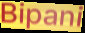
Bipani